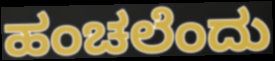
ಹಂಚಲೆಂದು